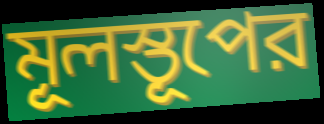
মূলস্তূপের